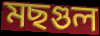
মছগুল